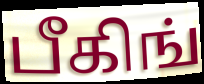
பீகிங்